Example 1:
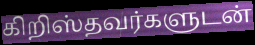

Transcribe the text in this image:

கிறிஸ்தவர்களுடன்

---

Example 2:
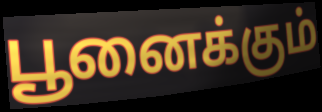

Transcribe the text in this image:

பூனைக்கும்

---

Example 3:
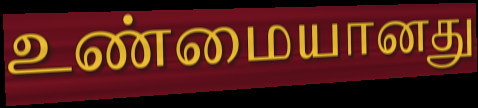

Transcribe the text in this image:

உண்மையானது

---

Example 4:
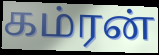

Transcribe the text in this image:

கம்ரன்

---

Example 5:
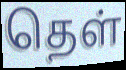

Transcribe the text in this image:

தெள்